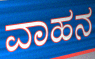
ವಾಹನ